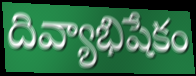
దివ్యాభిషేకం